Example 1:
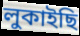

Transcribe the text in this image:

লুকাইছি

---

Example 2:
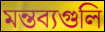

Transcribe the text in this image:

মন্তব্যগুলি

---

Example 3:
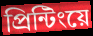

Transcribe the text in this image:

প্রিন্টিংয়ে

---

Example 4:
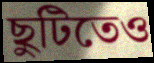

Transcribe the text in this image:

ছুটিতেও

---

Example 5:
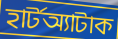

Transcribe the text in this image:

হার্টঅ্যাটাক